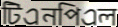
টিএনপিএল